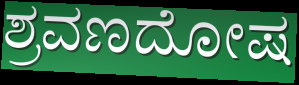
ಶ್ರವಣದೋಷ